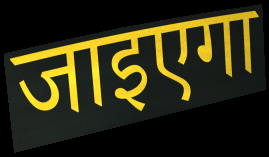
जाइएगा